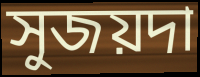
সুজয়দা